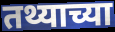
तथ्याच्या